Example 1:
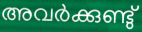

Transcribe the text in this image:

അവർക്കുണ്ടു്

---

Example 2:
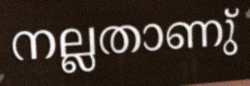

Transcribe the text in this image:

നല്ലതാണു്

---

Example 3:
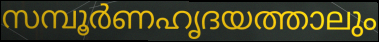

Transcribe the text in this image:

സമ്പൂർണഹൃദയത്താലും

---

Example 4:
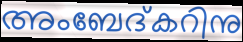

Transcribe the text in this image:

അംബേദ്കറിനു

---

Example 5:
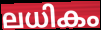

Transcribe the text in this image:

ലധികം